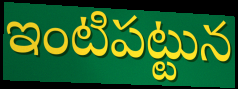
ఇంటిపట్టున